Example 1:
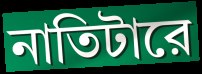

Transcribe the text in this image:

নাতিটারে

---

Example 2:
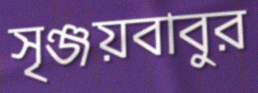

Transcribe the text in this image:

সৃঞ্জয়বাবুর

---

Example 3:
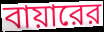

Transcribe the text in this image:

বায়ারের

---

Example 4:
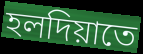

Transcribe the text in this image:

হলদিয়াতে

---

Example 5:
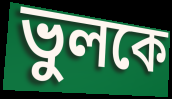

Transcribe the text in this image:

ভুলকে